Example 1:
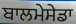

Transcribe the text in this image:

ਬਾਲਮੇਸੇਡਾ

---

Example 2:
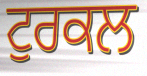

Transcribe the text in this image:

ਟੁਰਕਲ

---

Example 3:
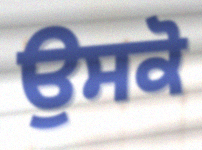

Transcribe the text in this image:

ਉਸਕੋ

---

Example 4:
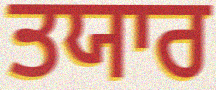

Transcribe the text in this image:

ਤਯਾਰ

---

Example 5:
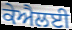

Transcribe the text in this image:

ਕੇਐਲਈ